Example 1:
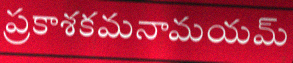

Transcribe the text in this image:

ప్రకాశకమనామయమ్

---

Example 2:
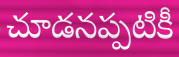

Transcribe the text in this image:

చూడనప్పటికీ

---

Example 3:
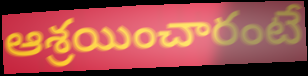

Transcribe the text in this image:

ఆశ్రయించారంటే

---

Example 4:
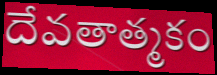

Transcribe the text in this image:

దేవతాత్మకం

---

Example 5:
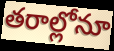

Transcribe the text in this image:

తరాల్లోనూ